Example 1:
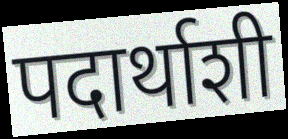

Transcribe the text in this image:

पदार्थाशी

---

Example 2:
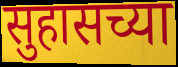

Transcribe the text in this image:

सुहासच्या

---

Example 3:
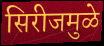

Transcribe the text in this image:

सिरीजमुळे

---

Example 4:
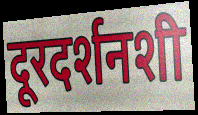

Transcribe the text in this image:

दूरदर्शनशी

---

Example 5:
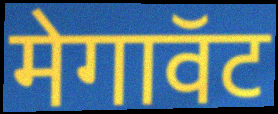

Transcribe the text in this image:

मेगावॅट